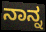
ನಾನ್ನ